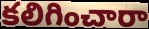
కలిగించారా